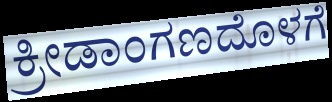
ಕ್ರೀಡಾಂಗಣದೊಳಗೆ